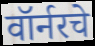
वॉर्नरचे